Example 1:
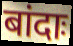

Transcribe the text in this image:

बांदाः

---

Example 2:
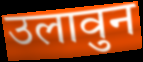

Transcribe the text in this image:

उलावुन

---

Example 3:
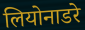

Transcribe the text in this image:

लियोनाडरे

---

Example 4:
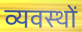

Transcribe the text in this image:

व्यवस्थों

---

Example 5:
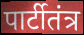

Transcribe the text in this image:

पार्टीतंत्र